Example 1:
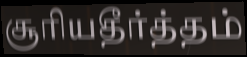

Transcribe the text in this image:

சூரியதீர்த்தம்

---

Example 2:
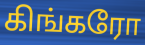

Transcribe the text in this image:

கிங்கரோ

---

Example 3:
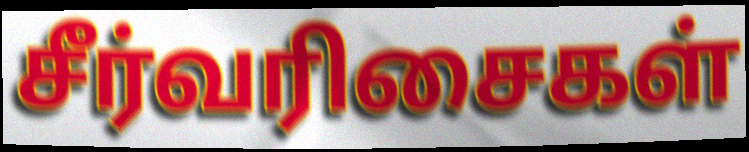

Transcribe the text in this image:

சீர்வரிசைகள்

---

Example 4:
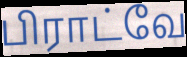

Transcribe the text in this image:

பிராட்வே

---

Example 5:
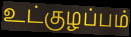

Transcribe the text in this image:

உட்குழப்பம்